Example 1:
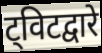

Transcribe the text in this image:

ट्विटद्वारे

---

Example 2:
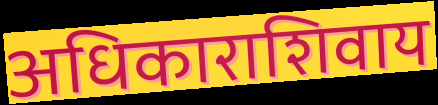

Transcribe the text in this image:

अधिकाराशिवाय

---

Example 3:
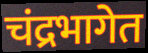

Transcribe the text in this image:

चंद्रभागेत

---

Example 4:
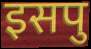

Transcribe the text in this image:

इसपु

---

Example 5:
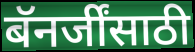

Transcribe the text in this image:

बॅनर्जींसाठी